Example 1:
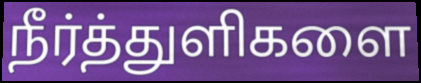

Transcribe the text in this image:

நீர்த்துளிகளை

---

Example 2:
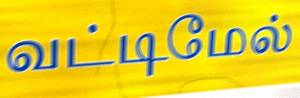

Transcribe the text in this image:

வட்டிமேல்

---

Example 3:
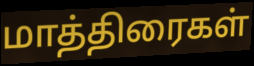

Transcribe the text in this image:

மாத்திரைகள்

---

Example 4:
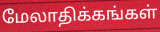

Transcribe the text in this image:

மேலாதிக்கங்கள்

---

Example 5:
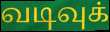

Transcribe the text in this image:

வடிவுக்